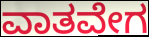
ವಾತವೇಗ